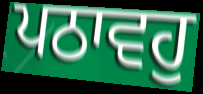
ਪਠਾਵਹੁ